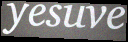
yesuve